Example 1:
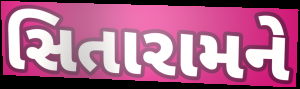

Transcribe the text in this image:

સિતારામને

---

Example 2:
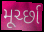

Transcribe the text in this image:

મૂર્ચ્છા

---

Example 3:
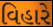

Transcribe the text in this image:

વિહારે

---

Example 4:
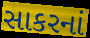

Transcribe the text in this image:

સાકરનાં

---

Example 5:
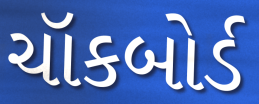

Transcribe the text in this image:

ચૉકબોર્ડ